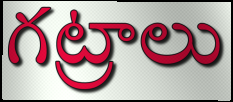
గట్రాలు